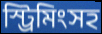
স্ট্রিমিংসহ